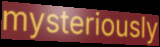
mysteriously